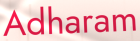
Adharam